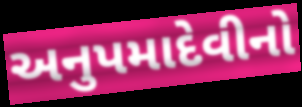
અનુપમાદેવીનો